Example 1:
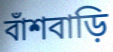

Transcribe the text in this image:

বাঁশবাড়ি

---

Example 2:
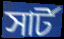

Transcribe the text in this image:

সার্ট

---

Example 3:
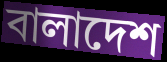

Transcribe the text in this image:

বালাদেশ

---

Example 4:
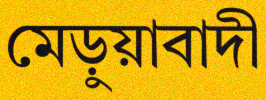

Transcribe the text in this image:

মেড়ুয়াবাদী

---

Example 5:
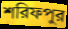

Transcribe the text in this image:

শরিফপুর